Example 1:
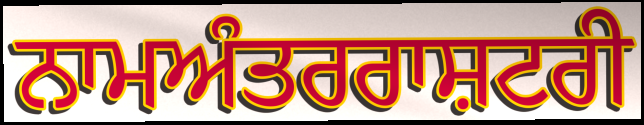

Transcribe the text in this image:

ਨਾਮਅੰਤਰਰਾਸ਼ਟਰੀ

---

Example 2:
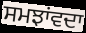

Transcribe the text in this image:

ਸਮਝਾਂਵਦਾ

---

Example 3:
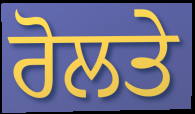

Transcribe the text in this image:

ਰੋਲਤੇ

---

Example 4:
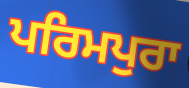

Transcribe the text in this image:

ਪਰਿਮਪੁਰਾ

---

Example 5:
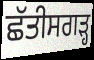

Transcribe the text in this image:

ਛੱਤੀਸਗਡ਼੍ਹ